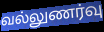
வல்லுணர்வு